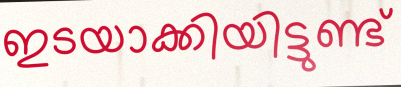
ഇടയാക്കിയിട്ടുണ്ട്